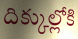
దిక్కుల్లోకి